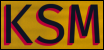
KSM